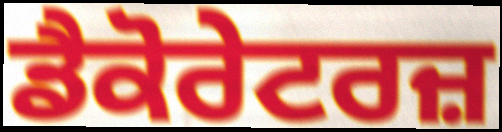
ਡੈਕੋਰੇਟਰਜ਼